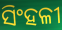
ସିଂହଳୀ